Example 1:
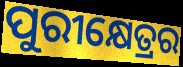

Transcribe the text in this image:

ପୁରୀକ୍ଷେତ୍ରର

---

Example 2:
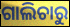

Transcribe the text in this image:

ଗାଲିଚାରୁ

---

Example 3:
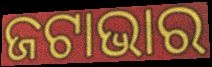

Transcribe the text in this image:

ଜଟାଭାର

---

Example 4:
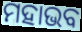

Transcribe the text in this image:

ମହାଭବ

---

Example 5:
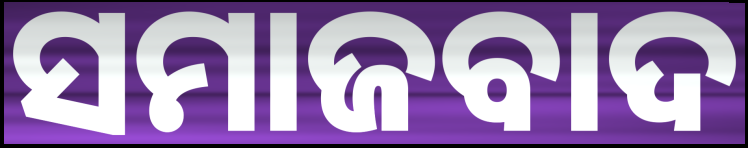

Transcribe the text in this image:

ସମାଜବାଦ